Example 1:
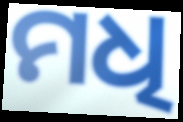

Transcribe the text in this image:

ମଧି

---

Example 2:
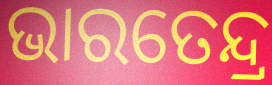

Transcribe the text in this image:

ଭାରତେନ୍ଦ୍ର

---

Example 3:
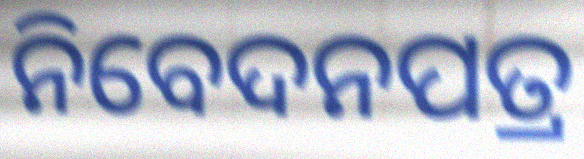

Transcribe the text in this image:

ନିବେଦନପତ୍ର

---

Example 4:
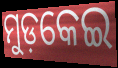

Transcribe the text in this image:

ମୁଡ଼କେଇ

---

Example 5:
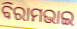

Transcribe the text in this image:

ବିରାମଭାଇ